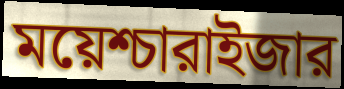
ময়েশ্চারাইজার